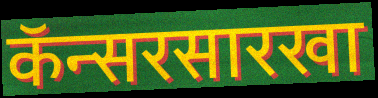
कॅन्सरसारखा